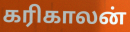
கரிகாலன்